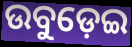
ଉବୁଡ଼େଇ